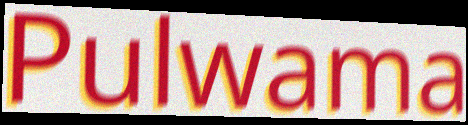
Pulwama